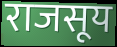
राजसूय